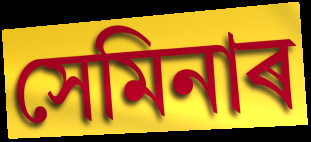
সেমিনাৰ